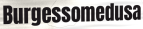
Burgessomedusa